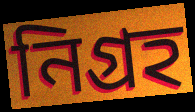
নিগ্রহ